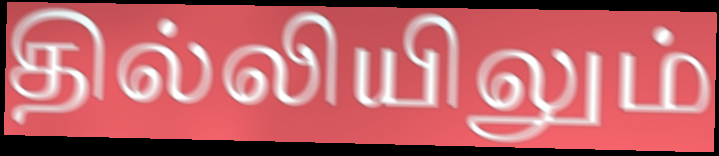
தில்லியிலும்